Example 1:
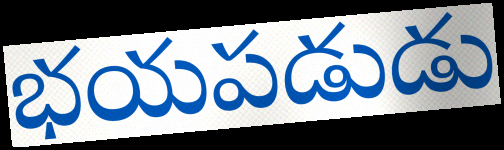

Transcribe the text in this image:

భయపడుడు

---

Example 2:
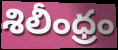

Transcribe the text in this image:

శిలీంధ్రం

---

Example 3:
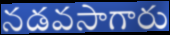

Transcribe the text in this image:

నడవసాగారు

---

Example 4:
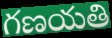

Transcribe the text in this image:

గణయతి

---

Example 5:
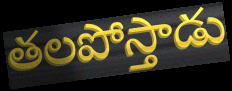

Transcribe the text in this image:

తలపోస్తాడు